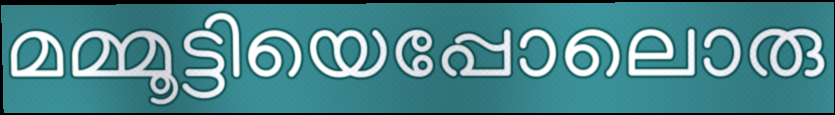
മമ്മൂട്ടിയെപ്പോലൊരു